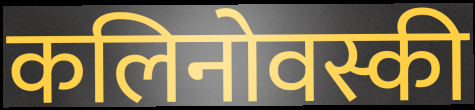
कलिनोवस्की